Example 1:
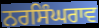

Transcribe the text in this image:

ਨਰਸਿੰਘਰਾਵ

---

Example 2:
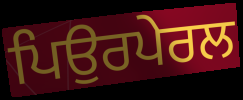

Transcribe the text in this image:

ਪਿਉਰਪੇਰਲ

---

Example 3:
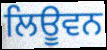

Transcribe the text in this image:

ਲਿਊਵਨ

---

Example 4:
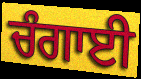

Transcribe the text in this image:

ਚੰਗਾਈ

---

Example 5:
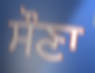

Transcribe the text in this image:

ਸੌਣਾ